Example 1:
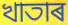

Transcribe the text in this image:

খাতাৰ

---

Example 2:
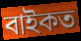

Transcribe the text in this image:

বাইকত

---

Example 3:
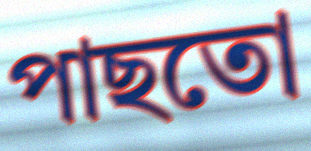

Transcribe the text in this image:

পাছতো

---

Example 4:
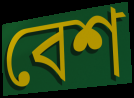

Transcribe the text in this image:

বেশ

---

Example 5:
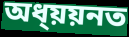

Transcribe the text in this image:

অধ্য়য়নত